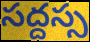
సద్దస్స